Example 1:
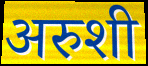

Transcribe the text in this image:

अरुशी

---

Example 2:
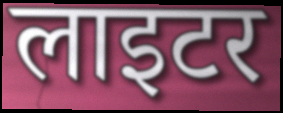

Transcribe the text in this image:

लाइटर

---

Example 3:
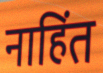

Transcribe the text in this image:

नाहिंत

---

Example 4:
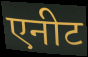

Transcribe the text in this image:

एनीट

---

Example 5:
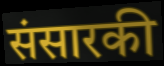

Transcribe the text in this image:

संसारकी